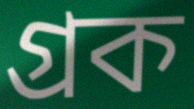
গ্রক